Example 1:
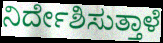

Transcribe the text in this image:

ನಿರ್ದೇಶಿಸುತ್ತಾಳೆ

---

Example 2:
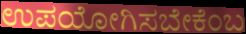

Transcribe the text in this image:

ಉಪಯೋಗಿಸಬೇಕೆಂಬ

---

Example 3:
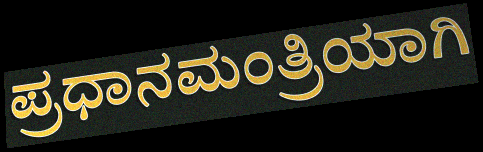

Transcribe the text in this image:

ಪ್ರಧಾನಮಂತ್ರಿಯಾಗಿ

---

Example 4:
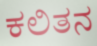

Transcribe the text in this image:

ಕಲಿತನ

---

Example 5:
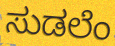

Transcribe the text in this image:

ಸುಡಲೆಂ